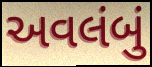
અવલંબું